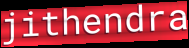
jithendra